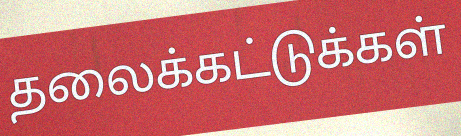
தலைக்கட்டுக்கள்